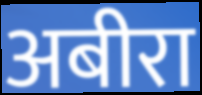
अबीरा